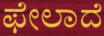
ಫೇಲಾದೆ